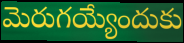
మెరుగయ్యేందుకు